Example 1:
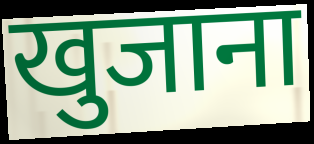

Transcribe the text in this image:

खुजाना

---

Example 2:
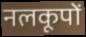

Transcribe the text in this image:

नलकूपों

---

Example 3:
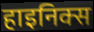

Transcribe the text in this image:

हाइनिक्स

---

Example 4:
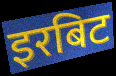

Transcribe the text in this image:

इरबिट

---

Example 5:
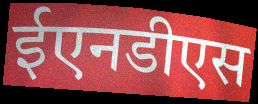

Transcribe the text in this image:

ईएनडीएस